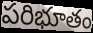
పరిభూతం